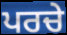
ਪਰਚੇ